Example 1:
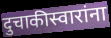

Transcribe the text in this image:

दुचाकीस्वारांना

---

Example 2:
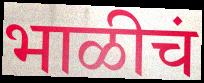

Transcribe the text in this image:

भाळीचं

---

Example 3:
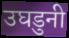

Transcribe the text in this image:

उघडुनी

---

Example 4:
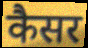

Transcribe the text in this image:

कैसर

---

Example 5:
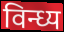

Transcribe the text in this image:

विन्ध्य